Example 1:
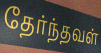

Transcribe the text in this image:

தேர்ந்தவள்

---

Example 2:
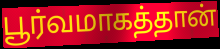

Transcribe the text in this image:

பூர்வமாகத்தான்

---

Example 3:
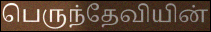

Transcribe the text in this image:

பெருந்தேவியின்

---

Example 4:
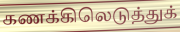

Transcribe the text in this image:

கணக்கிலெடுத்துக்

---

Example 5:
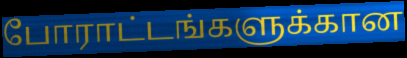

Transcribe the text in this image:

போராட்டங்களுக்கான